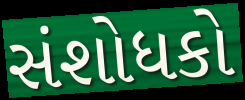
સંશોધકો